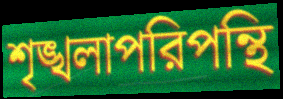
শৃঙ্খলাপরিপন্থি